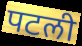
पटली